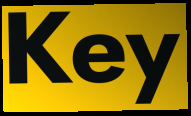
Key